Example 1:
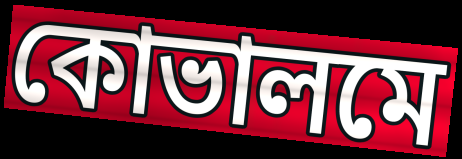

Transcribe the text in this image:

কোভালমে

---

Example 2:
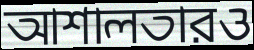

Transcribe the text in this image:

আশালতারও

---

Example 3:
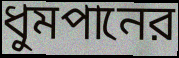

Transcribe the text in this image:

ধুমপানের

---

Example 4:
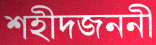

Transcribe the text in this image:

শহীদজননী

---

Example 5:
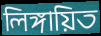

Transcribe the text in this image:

লিঙ্গায়িত